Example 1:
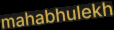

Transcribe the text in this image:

mahabhulekh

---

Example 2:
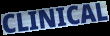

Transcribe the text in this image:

CLINICAL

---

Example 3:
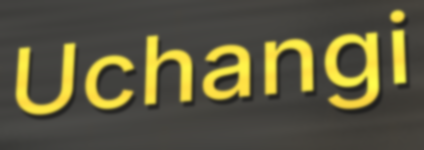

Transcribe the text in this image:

Uchangi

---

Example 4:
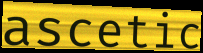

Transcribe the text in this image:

ascetic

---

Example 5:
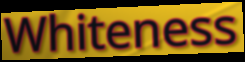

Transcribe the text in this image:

Whiteness